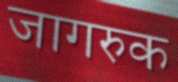
जागरुक